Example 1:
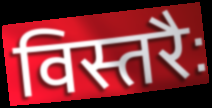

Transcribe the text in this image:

विस्तरैः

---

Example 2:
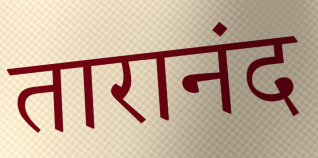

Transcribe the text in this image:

तारानंद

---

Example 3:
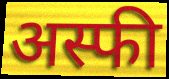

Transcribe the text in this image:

अस्फी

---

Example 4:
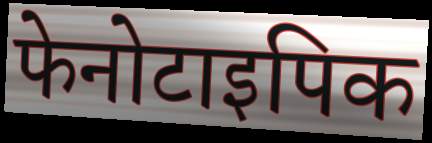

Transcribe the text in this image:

फेनोटाइपिक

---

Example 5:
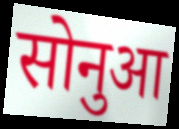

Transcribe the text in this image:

सोनुआ